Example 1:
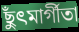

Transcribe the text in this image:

ছুঁৎমার্গীতা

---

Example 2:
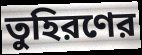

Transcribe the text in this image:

তুহিরণের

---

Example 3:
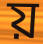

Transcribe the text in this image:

য়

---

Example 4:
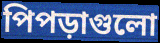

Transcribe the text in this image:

পিপড়াগুলো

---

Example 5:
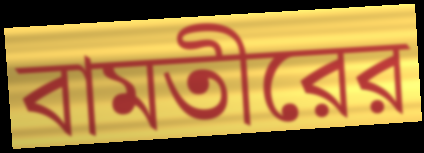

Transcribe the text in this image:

বামতীরের